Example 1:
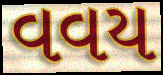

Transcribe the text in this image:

વવય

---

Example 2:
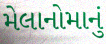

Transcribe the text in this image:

મેલાનોમાનું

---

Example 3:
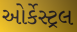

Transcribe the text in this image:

ઓર્કેસ્ટ્રલ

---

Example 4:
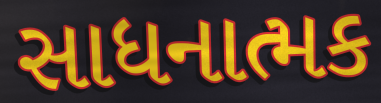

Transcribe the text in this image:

સાધનાત્મક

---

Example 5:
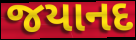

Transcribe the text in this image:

જયાનદ